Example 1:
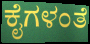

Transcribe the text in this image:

ಕೈಗಳಂತೆ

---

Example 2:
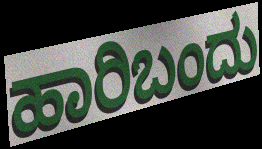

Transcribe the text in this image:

ಹಾರಿಬಂದು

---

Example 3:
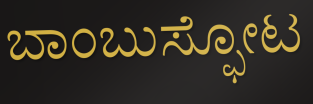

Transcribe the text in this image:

ಬಾಂಬುಸ್ಫೋಟ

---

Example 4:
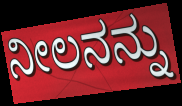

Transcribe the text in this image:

ನೀಲನನ್ನು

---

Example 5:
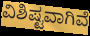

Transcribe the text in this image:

ವಿಶಿಷ್ಟವಾಗಿವೆ